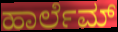
ಹಾರ್ಲೆಮ್